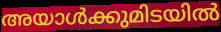
അയാൾക്കുമിടയിൽ